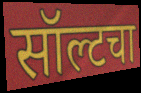
सॉल्टचा